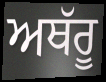
ਅਥੱਰੂ